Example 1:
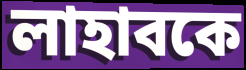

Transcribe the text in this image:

লাহাবকে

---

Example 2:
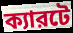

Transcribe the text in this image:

ক্যারটে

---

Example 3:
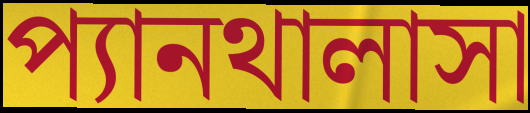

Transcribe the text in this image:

প্যানথালাসা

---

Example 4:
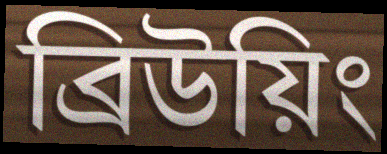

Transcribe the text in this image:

ব্রিউয়িং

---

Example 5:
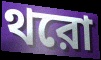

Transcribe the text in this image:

থরো